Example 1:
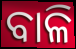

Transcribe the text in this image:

ବାଳି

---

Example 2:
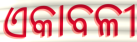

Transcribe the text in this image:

ଏକାବଳୀ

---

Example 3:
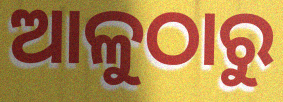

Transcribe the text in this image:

ଆଳୁଠାରୁ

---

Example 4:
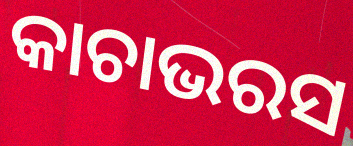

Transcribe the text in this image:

କାଚାଭରସ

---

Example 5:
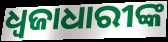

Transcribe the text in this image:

ଧ୍ଵଜାଧାରୀଙ୍କ